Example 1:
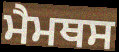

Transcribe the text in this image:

ਮੈਮਥਸ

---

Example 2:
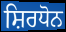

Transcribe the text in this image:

ਸ਼ਿਰਧੋਨ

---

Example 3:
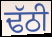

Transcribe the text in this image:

ਢੱਠੀ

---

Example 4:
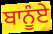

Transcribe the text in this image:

ਬਾਨੂੰਏ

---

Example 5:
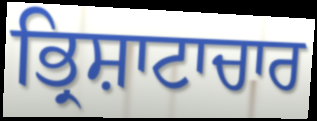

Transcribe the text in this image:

ਭ੍ਰਿਸ਼ਾਟਾਚਾਰ